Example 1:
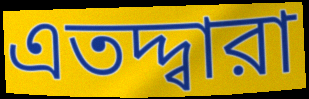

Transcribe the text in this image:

এতদ্দ্বারা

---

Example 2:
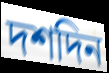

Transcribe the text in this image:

দশদিন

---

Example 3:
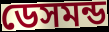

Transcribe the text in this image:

ডেসমন্ড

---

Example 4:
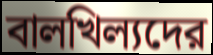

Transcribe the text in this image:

বালখিল্যদের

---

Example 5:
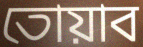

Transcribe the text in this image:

তোয়াব